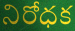
నిరోధక